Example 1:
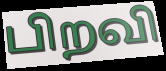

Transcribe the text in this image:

பிறவி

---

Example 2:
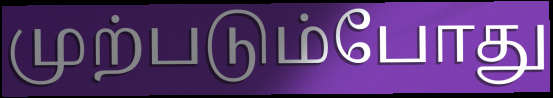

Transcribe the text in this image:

முற்படும்போது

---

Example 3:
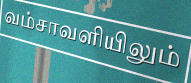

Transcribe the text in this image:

வம்சாவளியிலும்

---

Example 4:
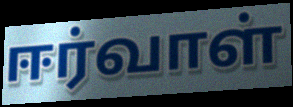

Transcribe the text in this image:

ஈர்வாள்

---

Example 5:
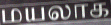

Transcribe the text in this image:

மயலாக